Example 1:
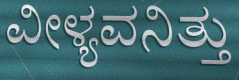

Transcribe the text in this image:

ವೀಳ್ಯವನಿತ್ತು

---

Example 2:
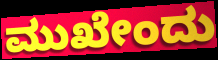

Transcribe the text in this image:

ಮುಖೇಂದು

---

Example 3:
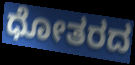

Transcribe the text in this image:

ಧೋತರದ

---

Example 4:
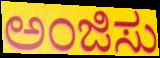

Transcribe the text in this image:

ಅಂಜಿಸು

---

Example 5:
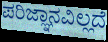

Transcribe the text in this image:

ಪರಿಜ್ಞಾನವಿಲ್ಲದೆ